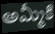
అమ్మీకి